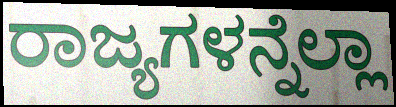
ರಾಜ್ಯಗಳನ್ನೆಲ್ಲಾ